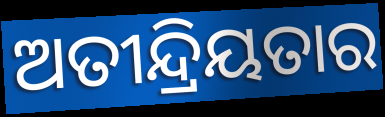
ଅତୀନ୍ଦ୍ରିୟତାର